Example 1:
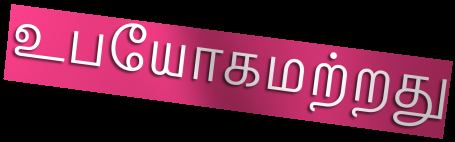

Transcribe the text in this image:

உபயோகமற்றது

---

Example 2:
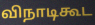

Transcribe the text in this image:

விநாடிகூட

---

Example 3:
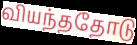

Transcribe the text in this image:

வியந்ததோடு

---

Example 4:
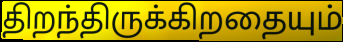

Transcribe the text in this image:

திறந்திருக்கிறதையும்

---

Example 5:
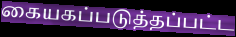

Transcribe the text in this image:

கையகப்படுத்தப்பட்ட